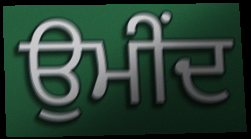
ਉਮੀਂਦ